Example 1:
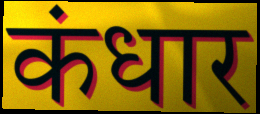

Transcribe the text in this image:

कंधार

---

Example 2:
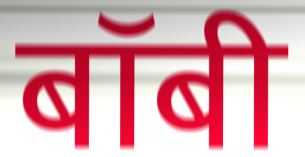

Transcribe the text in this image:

बॉबी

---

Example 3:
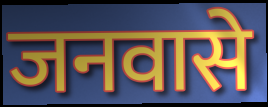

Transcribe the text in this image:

जनवासे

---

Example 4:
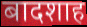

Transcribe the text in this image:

बादशाह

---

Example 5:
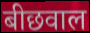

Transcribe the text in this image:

बीछवाल